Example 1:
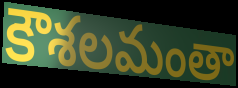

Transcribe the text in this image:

కౌశలమంతా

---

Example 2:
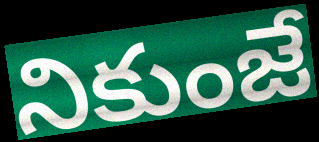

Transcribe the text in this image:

నికుంజే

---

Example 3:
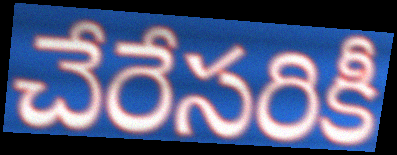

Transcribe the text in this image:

చేరేసరికీ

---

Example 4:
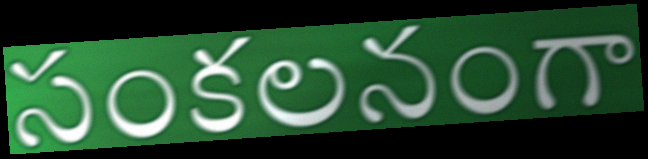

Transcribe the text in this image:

సంకలనంగా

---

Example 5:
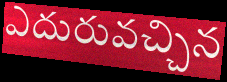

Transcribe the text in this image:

ఎదురువచ్చిన